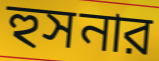
হুসনার